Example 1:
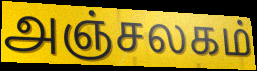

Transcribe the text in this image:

அஞ்சலகம்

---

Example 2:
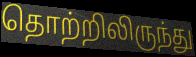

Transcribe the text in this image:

தொற்றிலிருந்து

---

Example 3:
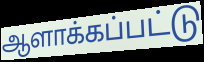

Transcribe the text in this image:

ஆளாக்கப்பட்டு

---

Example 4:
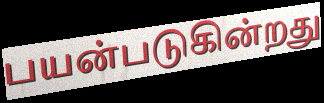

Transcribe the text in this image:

பயன்படுகின்றது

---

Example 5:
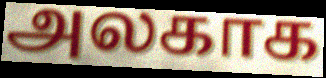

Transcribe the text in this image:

அலகாக